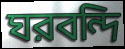
ঘরবন্দি